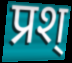
प्रश्